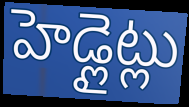
హెడ్లైట్లు